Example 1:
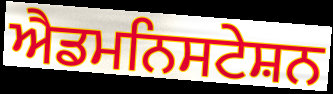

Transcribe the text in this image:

ਐਡਮਨਿਸਟੇਸ਼ਨ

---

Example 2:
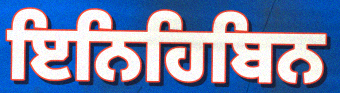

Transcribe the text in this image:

ਇਨਿਹਿਬਿਨ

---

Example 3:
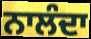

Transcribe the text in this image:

ਨਾਲੰਦਾ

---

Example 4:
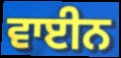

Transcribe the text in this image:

ਵਾਈਨ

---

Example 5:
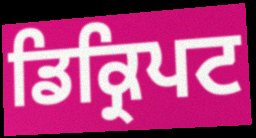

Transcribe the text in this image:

ਡਿਕ੍ਰਿਪਟ